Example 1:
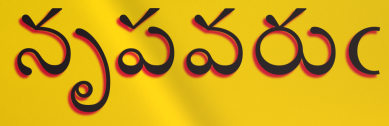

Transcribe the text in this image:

నృపవరుఁ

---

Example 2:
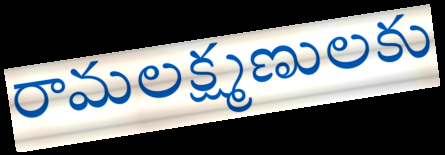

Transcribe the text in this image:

రామలక్ష్మణులకు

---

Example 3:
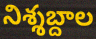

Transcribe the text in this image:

నిశ్శబ్దాల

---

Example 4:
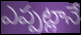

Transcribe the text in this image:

ఎప్పట్లానే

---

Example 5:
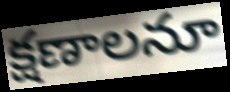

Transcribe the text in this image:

క్షణాలనూ